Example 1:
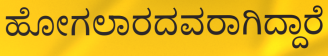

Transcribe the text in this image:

ಹೋಗಲಾರದವರಾಗಿದ್ದಾರೆ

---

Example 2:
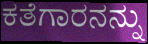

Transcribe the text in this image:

ಕತೆಗಾರನನ್ನು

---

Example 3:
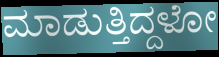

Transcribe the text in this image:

ಮಾಡುತ್ತಿದ್ದಳೋ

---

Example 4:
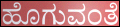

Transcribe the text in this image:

ಹೊಗುವಂತೆ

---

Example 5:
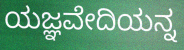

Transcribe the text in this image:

ಯಜ್ಞವೇದಿಯನ್ನ